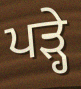
ਪੜ੍ਹੇ